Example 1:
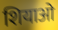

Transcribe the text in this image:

शियाओ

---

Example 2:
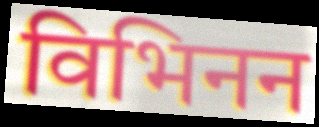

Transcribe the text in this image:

विभिनन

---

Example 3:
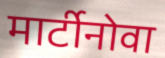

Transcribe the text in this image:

मार्टीनोवा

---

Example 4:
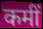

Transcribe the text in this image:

कमीं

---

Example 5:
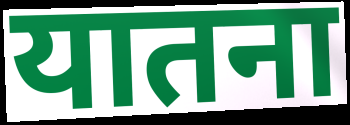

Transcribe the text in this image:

यातना